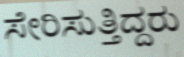
ಸೇರಿಸುತ್ತಿದ್ದರು